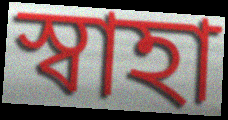
স্বাহা